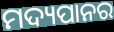
ମଦ୍ୟପାନର